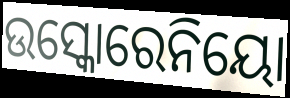
ଉସ୍କୋରେନିୟୋ